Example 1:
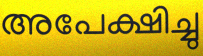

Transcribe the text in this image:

അപേക്ഷിച്ചു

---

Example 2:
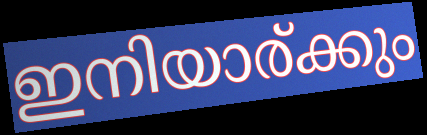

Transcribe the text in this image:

ഇനിയാര്ക്കും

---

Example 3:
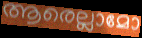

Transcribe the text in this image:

ആരെല്ലാമോ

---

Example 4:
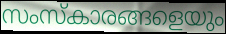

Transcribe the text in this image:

സംസ്കാരങ്ങളെയും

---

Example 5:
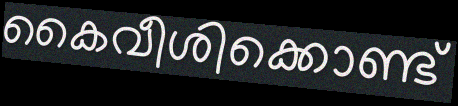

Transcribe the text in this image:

കൈവീശിക്കൊണ്ട്